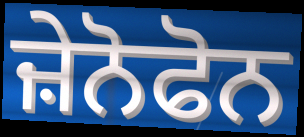
ਜ਼ੇਨੋਫੋਨ